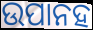
ଉପାନହ